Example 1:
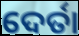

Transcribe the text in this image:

ଦେର୍ତା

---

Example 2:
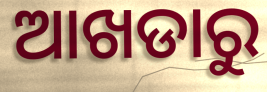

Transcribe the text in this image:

ଆଖଡାରୁ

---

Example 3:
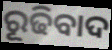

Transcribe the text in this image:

ରୂଢିବାଦ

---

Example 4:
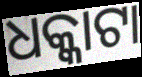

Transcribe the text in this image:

ଧକ୍କାଟା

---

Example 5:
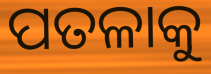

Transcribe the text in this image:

ପତଳାକୁ